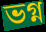
ভগ্ন